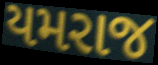
યમરાજ